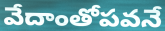
వేదాంతోపవనే